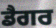
ਡੈਗਰ